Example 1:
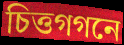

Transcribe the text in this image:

চিত্তগগনে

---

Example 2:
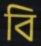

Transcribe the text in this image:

বি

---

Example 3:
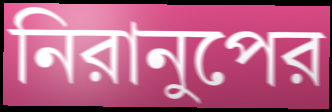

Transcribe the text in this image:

নিরানুপের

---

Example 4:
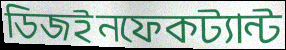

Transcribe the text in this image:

ডিজইনফেকট্যান্ট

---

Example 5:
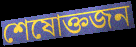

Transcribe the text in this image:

শেষোক্তজন